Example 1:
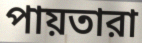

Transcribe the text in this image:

পায়তারা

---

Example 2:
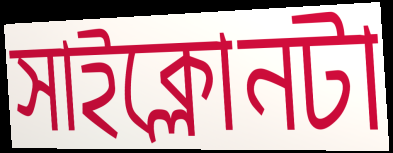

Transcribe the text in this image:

সাইক্লোনটা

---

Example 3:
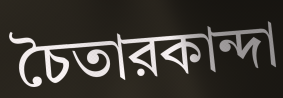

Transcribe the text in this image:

চৈতারকান্দা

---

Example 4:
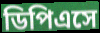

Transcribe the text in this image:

ডিপিএসে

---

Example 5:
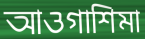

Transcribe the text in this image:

আওগাশিমা